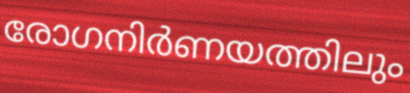
രോഗനിർണയത്തിലും